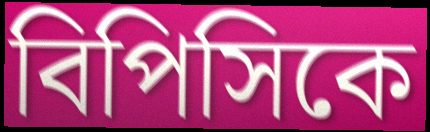
বিপিসিকে